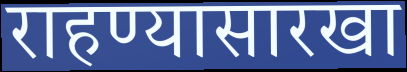
राहण्यासारखा